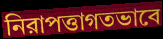
নিরাপত্তাগতভাবে